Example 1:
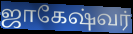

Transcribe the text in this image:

ஜாகேஷ்வர்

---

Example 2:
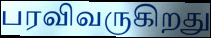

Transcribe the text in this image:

பரவிவருகிறது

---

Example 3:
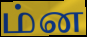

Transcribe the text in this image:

ம்ன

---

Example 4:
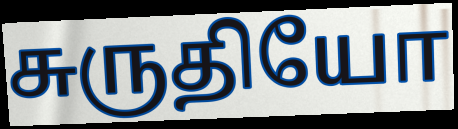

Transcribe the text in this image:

சுருதியோ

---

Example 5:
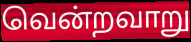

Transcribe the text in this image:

வென்றவாறு